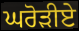
ਘਰੋੜੀਏ